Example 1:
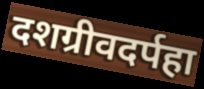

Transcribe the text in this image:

दशग्रीवदर्पहा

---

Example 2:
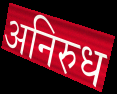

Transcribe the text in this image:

अनिरुध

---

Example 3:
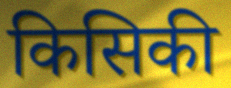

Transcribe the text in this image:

किसिकी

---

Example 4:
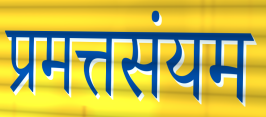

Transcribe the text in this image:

प्रमत्तसंयम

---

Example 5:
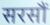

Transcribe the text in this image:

सरसौं